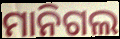
ମାନିଗଲ